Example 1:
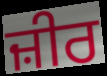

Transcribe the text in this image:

ਜ਼ੀਰ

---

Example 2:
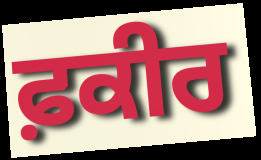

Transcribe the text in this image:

ਫ਼ਕੀਰ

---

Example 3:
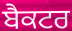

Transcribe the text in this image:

ਬੈਕਟਰ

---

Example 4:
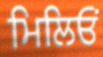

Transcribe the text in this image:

ਮਿਲਿਓਂ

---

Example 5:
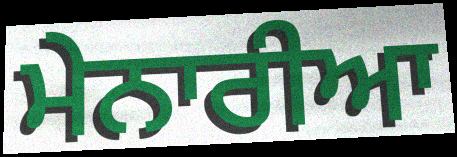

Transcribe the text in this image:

ਮੇਨਾਰੀਆ